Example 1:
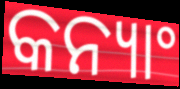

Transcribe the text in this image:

କନ୍ୟାଂ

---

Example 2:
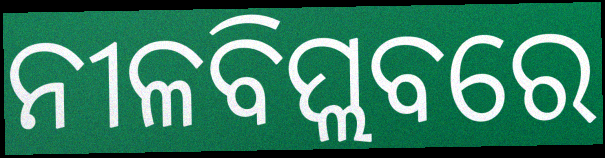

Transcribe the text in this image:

ନୀଳବିପ୍ଲବରେ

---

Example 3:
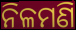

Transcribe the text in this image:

ନିଳମଣି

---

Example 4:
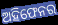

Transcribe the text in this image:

ଅହିଫେନର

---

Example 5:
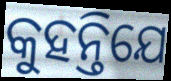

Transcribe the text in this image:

କୁହନ୍ତିଯେ